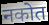
नकोत